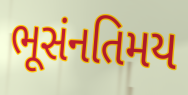
ભૂસંનતિમય